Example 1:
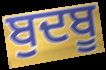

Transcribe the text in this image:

ਬੁਦਬੂ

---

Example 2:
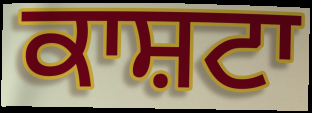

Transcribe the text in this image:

ਕਾਸ਼ਟਾ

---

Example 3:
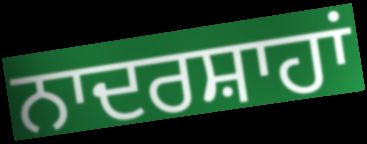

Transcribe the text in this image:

ਨਾਦਰਸ਼ਾਹਾਂ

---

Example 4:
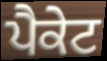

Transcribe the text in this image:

ਪੈਕੇਟ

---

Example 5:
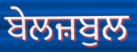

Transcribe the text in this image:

ਬੇਲਜ਼ਬੁਲ